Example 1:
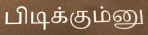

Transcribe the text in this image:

பிடிக்கும்னு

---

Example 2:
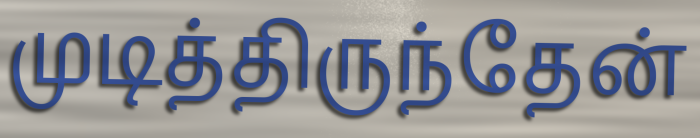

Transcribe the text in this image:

முடித்திருந்தேன்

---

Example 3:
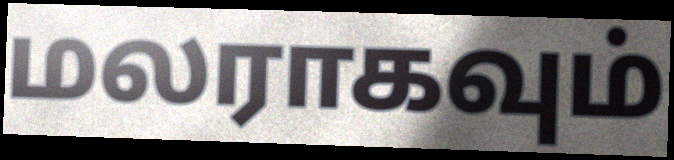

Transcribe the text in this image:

மலராகவும்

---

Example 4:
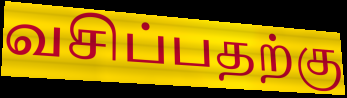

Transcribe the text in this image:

வசிப்பதற்கு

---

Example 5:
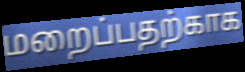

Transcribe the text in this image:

மறைப்பதற்காக